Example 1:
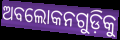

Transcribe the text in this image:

ଅବଲୋକନଗୁଡ଼ିକୁ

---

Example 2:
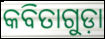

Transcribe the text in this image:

କବିତାଗୁଡ଼ା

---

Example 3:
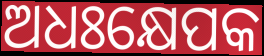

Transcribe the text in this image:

ଅଧଃକ୍ଷେପକ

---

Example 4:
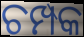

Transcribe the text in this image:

ଚମ୍ପକ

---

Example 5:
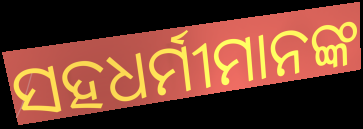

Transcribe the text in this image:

ସହଧର୍ମୀମାନଙ୍କ